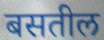
बसतील